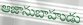
ఆజానుబాహుడు